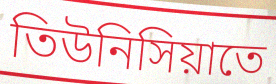
তিউনিসিয়াতে